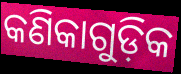
କଣିକାଗୁଡ଼ିକ